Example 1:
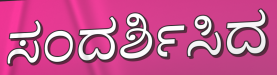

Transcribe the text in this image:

ಸಂದರ್ಶಿಸಿದ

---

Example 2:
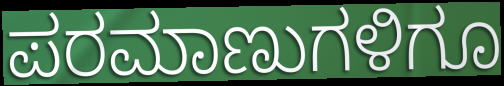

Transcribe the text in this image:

ಪರಮಾಣುಗಳಿಗೂ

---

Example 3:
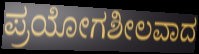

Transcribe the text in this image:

ಪ್ರಯೋಗಶೀಲವಾದ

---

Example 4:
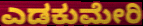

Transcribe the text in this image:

ಎಡಕುಮೇರಿ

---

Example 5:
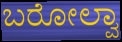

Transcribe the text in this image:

ಬರೋಲ್ವಾ